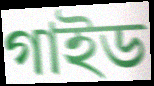
গাইড